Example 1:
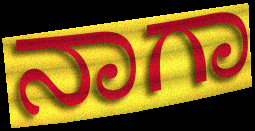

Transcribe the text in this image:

ನಾಗಾ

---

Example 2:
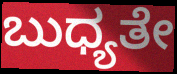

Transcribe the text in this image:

ಬುಧ್ಯತೇ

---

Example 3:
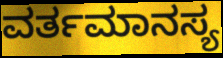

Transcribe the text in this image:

ವರ್ತಮಾನಸ್ಯ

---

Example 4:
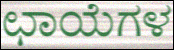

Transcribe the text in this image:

ಛಾಯೆಗಳ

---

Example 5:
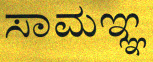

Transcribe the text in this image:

ಸಾಮಞ್ಞ